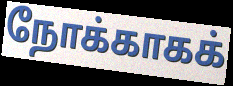
நோக்காகக்